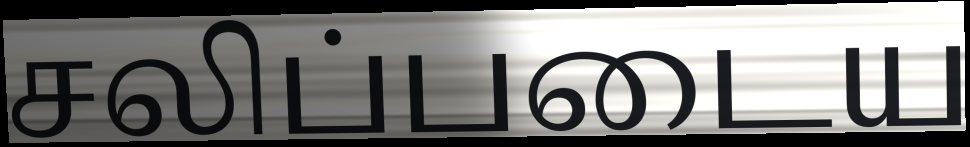
சலிப்படைய